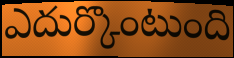
ఎదుర్కొంటుంది